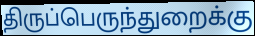
திருப்பெருந்துறைக்கு